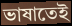
ভাষাতেই